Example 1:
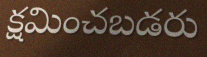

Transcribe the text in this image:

క్షమించబడరు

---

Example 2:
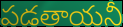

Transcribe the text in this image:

పడతాయనీ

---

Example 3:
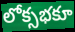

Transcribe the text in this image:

లోక్సభకూ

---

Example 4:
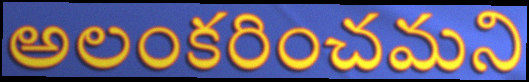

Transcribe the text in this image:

అలంకరించమని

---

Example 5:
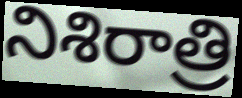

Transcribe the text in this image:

నిశిరాత్రి